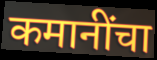
कमानींचा